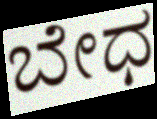
ಬೇಧ